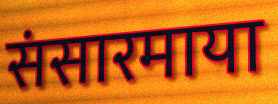
संसारमाया